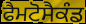
ਫੈਮਟੋਸੈਕੰਡ